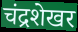
चंद्रशेखर